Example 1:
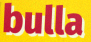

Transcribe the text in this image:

bulla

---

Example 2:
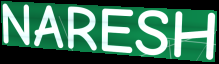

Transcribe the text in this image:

NARESH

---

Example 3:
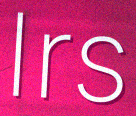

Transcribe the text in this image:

Irs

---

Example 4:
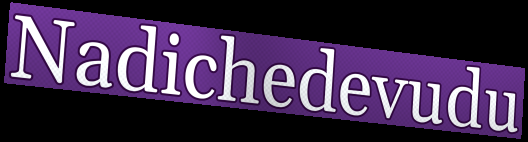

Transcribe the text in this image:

Nadichedevudu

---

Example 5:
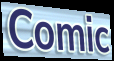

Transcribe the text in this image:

Comic